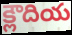
క్లౌదియ